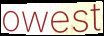
owest